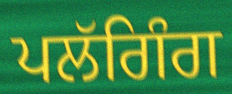
ਪਲੱਗਿੰਗ